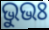
ଭୁଭଃ